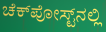
ಚೆಕ್‌ಪೋಸ್ಟ್‌ನಲ್ಲಿ